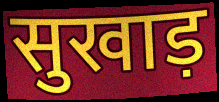
सुखाड़